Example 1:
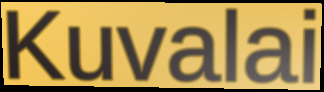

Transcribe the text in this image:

Kuvalai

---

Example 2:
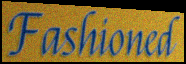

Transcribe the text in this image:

Fashioned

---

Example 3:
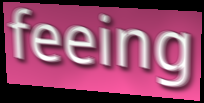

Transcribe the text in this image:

feeing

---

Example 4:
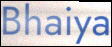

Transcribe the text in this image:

Bhaiya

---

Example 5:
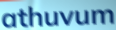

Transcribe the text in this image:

athuvum